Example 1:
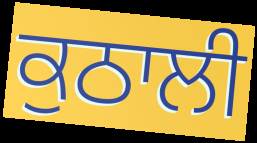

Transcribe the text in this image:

ਕੁਠਾਲੀ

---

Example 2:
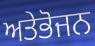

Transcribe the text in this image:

ਅਤੇਭੋਜਨ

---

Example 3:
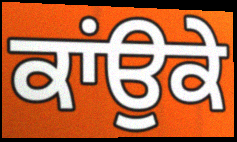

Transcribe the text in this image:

ਕਾਂਉਕੇ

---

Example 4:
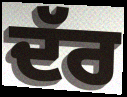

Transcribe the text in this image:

ਦੱਰ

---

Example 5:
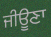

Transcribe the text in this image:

ਜੀਊਣਾ